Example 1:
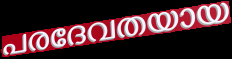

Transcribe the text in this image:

പരദേവതയായ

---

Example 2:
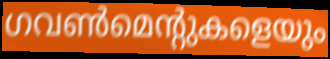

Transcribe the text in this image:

ഗവൺമെന്റുകളെയും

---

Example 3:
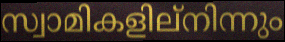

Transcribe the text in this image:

സ്വാമികളില്നിന്നും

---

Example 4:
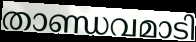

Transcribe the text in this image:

താണ്ഡവമാടി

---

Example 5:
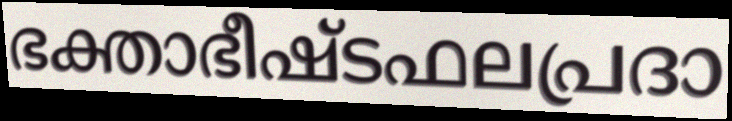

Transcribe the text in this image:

ഭക്താഭീഷ്ടഫലപ്രദാ